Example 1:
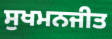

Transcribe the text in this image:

ਸੁਖਮਨਜੀਤ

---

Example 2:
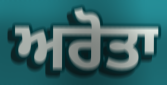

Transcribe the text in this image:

ਅਰੋਤਾ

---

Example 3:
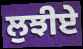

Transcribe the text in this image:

ਲੁਝੀਏ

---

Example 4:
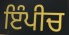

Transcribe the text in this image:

ਇੰਪੀਚ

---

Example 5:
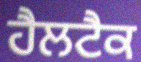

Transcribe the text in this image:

ਹੈਲਟੈਕ